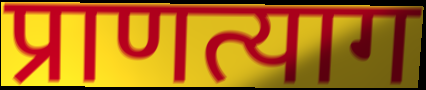
प्राणत्याग